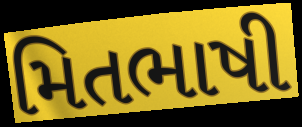
મિતભાષી